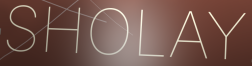
SHOLAY